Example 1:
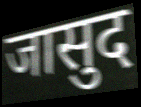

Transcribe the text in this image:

जासुद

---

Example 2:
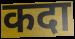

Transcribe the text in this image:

कदा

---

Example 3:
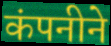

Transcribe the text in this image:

कंपनीने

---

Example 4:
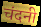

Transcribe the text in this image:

चंदनी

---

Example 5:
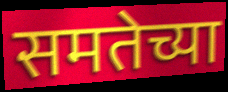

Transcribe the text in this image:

समतेच्या